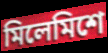
মিলেমিশে